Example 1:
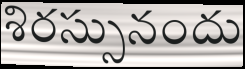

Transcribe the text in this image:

శిరస్సునందు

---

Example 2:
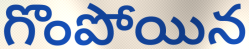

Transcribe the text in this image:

గొంపోయిన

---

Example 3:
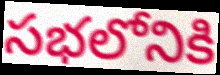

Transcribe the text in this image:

సభలోనికి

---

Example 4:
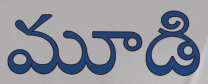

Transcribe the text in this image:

మూడి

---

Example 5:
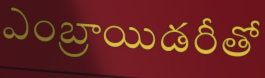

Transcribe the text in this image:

ఎంబ్రాయిడరీతో